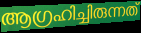
ആഗ്രഹിച്ചിരുന്നത്